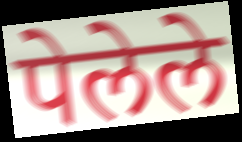
पेलेले